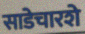
साडेचारशे